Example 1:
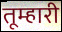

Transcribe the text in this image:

तूम्हारी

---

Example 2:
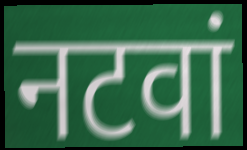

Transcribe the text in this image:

नटवां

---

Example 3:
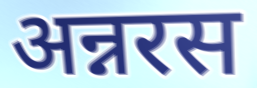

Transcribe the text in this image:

अन्नरस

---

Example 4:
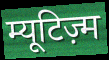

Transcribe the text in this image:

म्यूटिज़्म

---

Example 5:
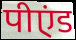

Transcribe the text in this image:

पीएंड